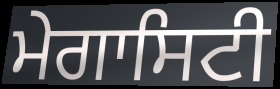
ਮੇਗਾਸਿਟੀ